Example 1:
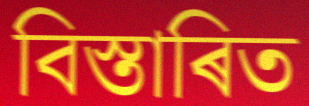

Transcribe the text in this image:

বিস্তাৰিত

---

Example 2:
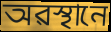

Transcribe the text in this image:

অৱস্থানে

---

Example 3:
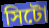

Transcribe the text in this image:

সিটো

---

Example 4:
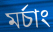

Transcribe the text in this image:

মৰ্চাং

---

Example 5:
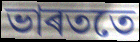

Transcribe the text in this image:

ভাৰততে